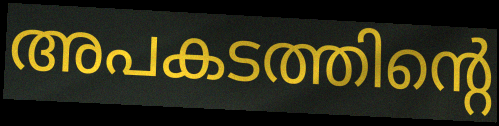
അപകടത്തിന്റെ